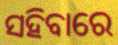
ସହିବାରେ